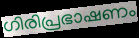
ഗിരിപ്രഭാഷണം